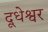
दूधेश्वर